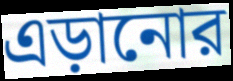
এড়ানোর